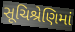
સૂચિશ્રેણિમાં